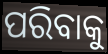
ପରିବାକୁ